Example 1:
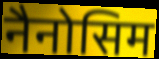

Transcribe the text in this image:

नैनोसिम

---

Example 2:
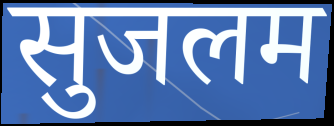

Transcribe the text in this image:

सुजलम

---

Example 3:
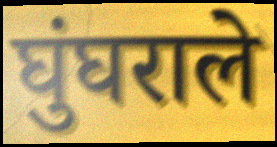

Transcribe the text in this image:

घुंघराले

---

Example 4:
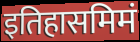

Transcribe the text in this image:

इतिहासमिमं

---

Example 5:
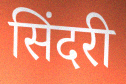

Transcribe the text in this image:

सिंदरी